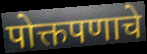
पोक्तपणाचे